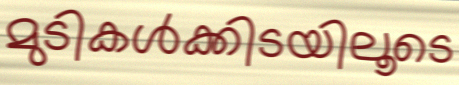
മുടികൾക്കിടയിലൂടെ